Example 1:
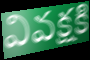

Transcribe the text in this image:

వివక్షకి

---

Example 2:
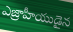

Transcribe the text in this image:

ఎజ్రాహీయుడైన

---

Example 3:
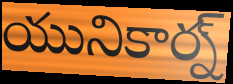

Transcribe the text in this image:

యునికార్న్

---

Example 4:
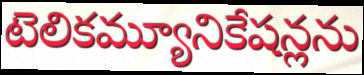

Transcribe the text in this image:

టెలికమ్యూనికేషన్లను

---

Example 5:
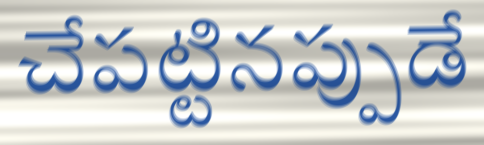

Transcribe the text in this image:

చేపట్టినప్పుడే